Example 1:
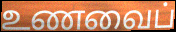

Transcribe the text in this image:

உணவைப்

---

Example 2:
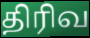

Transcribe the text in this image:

திரிவ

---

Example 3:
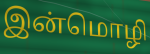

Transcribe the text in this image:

இன்மொழி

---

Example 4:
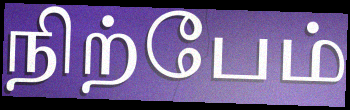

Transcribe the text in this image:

நிற்பேம்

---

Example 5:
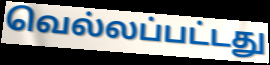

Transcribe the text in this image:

வெல்லப்பட்டது